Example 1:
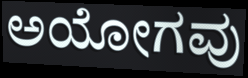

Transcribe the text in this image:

ಅಯೋಗವು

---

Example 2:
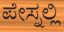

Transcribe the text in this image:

ಪೇಸ್ನಲ್ಲಿ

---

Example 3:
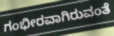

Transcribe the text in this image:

ಗಂಭೀರವಾಗಿರುವಂತೆ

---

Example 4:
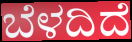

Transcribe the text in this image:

ಬೆಳದಿದೆ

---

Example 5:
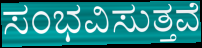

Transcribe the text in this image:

ಸಂಭವಿಸುತ್ತವೆ